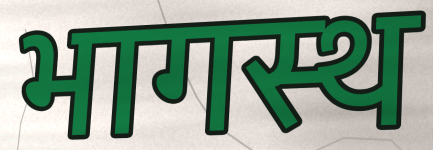
भागस्थ